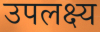
उपलक्ष्य